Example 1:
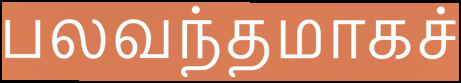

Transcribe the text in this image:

பலவந்தமாகச்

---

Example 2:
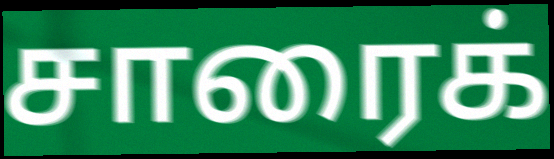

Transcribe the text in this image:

சாரைக்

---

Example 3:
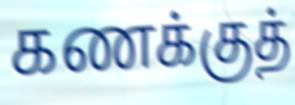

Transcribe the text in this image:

கணக்குத்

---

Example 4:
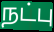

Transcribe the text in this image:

நட்பு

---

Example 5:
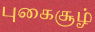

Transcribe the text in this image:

புகைசூழ்